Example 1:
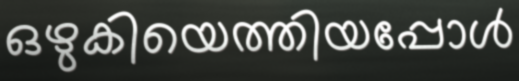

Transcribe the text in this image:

ഒഴുകിയെത്തിയപ്പോൾ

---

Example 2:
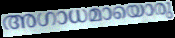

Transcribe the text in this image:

അഗാധമായൊരു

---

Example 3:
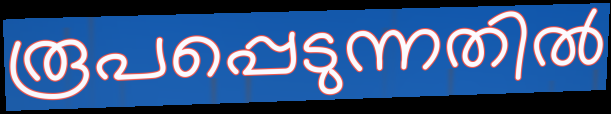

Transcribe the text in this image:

രൂപപ്പെടുന്നതിൽ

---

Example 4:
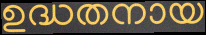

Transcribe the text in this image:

ഉദ്ധതനായ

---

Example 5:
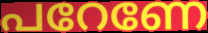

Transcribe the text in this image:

പറേണേ